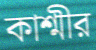
কাশ্মীর